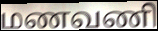
மணவணி